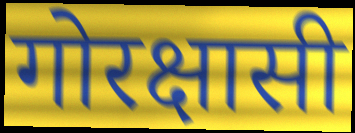
गोरक्षासी